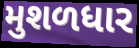
મુશળધાર